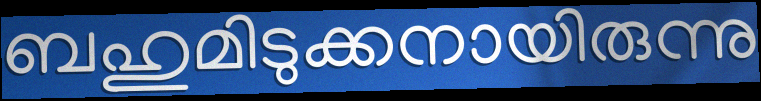
ബഹുമിടുക്കനായിരുന്നു